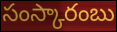
సంస్కారంబు